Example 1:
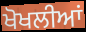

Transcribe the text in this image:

ਖੋਖਲੀਆਂ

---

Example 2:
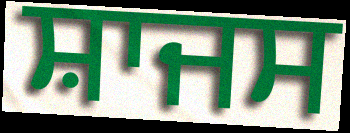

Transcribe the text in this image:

ਸ਼ਾਜਸ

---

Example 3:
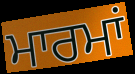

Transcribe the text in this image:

ਮਾਰਮਾਂ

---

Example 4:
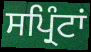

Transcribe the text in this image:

ਸਪ੍ਰਿੰਟਾਂ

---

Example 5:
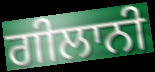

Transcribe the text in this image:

ਗੀਲਾਨੀ